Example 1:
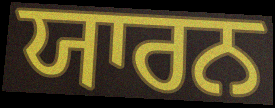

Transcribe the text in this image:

ਯਾਰਨ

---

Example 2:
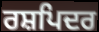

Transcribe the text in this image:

ਰਸ਼ਪਿਦਰ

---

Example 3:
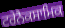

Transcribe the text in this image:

ਟਰੇਨੈਕਸਾਮਿਕ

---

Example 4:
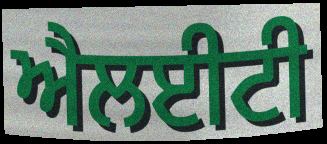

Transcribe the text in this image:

ਐਲਈਟੀ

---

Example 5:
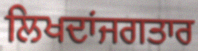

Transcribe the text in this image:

ਲਿਖਦਾਂਜਗਤਾਰ